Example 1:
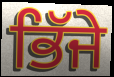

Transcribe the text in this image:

ਭਿੱਜੇ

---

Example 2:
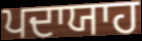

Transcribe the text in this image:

ਪਦਾਯਾਹ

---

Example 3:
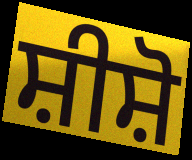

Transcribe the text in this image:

ਸ਼ੀਸ਼ੋ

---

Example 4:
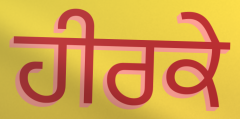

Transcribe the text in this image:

ਹੀਰਕੇ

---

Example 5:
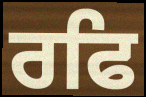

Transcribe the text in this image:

ਰਫਿ